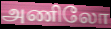
அணிலோ